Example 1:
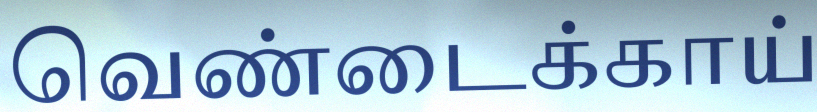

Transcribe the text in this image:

வெண்டைக்காய்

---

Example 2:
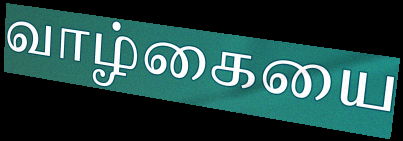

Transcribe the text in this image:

வாழ்கையை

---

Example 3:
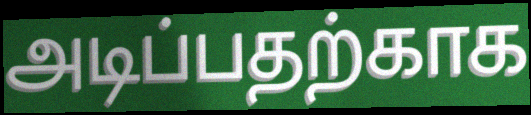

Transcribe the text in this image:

அடிப்பதற்காக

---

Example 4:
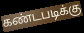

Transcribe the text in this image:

கண்டபடிக்கு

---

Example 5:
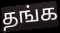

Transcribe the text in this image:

தங்க